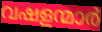
വഷളന്മാർ